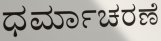
ಧರ್ಮಾಚರಣೆ